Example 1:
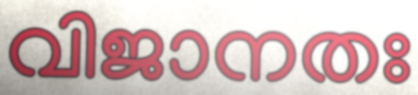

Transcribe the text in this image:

വിജാനതഃ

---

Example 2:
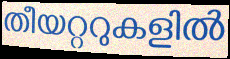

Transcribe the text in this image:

തീയറ്ററുകളിൽ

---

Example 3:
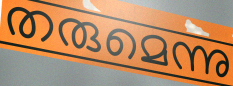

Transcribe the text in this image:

തരുമെന്നു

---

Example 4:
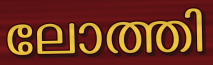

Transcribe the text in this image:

ലോത്തി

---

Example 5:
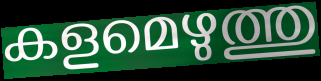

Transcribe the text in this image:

കളമെഴുത്തു